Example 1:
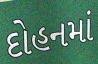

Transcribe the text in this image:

દોહનમાં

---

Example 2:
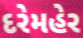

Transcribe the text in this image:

દરેમહેર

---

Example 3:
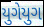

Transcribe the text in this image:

યુગેયુગ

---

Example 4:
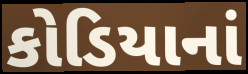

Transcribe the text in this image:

કોડિયાનાં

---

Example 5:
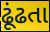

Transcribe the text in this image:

ઢૂંઢતા